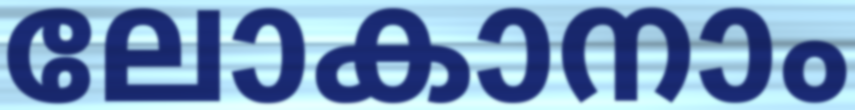
ലോകാനാം